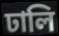
ঢালি